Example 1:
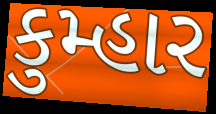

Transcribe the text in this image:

કુમ્હાર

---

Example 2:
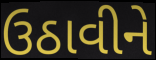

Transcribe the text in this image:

ઉઠાવીને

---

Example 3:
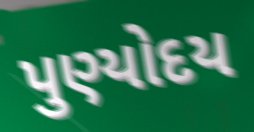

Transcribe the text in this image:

પુણ્યોદય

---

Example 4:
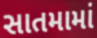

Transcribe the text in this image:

સાતમામાં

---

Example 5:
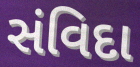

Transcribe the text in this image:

સંવિદા